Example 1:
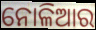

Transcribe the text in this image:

ନୋଳିଆର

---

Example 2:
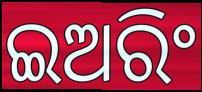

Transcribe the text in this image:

ଇଅରିଂ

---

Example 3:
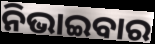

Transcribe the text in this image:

ନିଭାଇବାର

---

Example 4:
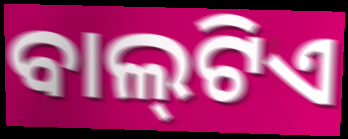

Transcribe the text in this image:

ବାଲ୍‍ଟିଏ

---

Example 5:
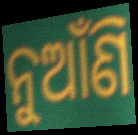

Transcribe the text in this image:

ନୁଆଁଣି